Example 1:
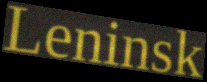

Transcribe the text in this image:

Leninsk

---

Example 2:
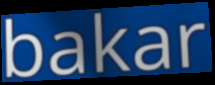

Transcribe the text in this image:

bakar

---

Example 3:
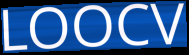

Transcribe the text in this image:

LOOCV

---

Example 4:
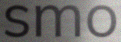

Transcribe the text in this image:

smo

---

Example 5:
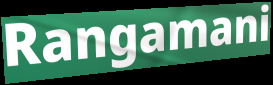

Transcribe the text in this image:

Rangamani